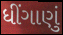
ધીંગાણું